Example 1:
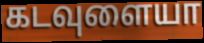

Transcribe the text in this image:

கடவுளையா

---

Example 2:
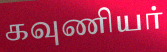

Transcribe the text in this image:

கவுணியர்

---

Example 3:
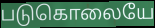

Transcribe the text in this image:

படுகொலையே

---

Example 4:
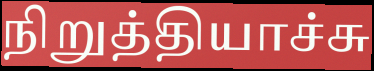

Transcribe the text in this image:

நிறுத்தியாச்சு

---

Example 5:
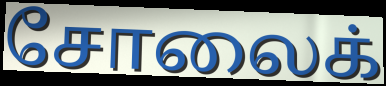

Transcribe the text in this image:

சோலைக்